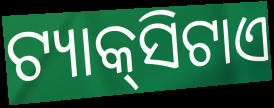
ଟ୍ୟାକ୍‌ସିଟାଏ